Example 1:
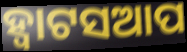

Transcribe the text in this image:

ହ୍ୱାଟସଆପ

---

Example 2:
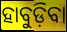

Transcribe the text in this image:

ହାବୁଡ଼ିବା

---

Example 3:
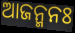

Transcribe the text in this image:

ଆଜନ୍ମନଃ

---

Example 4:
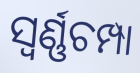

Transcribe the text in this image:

ସ୍ୱର୍ଣ୍ଣଚମ୍ପା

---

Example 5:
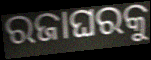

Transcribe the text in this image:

ରଜାଘରକୁ